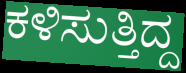
ಕಳಿಸುತ್ತಿದ್ದ